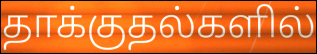
தாக்குதல்களில்